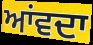
ਆਂਵਦਾ